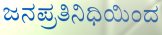
ಜನಪ್ರತಿನಿಧಿಯಿಂದ